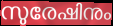
സുരേഷിനും